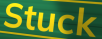
Stuck